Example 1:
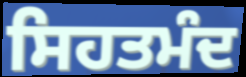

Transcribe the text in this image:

ਸਿਹਤਮੰਦ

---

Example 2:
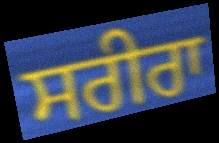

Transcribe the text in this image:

ਸਰੀਰਾ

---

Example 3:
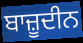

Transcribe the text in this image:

ਬਾਜ਼ੂਦੀਨ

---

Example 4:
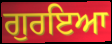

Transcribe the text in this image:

ਗੁਰਇਆ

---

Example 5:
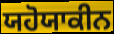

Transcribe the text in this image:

ਯਹੋਯਾਕੀਨ